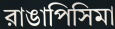
রাঙাপিসিমা